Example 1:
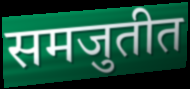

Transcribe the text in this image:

समजुतीत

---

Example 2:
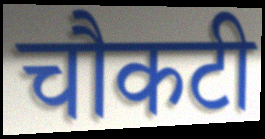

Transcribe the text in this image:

चौकटी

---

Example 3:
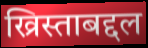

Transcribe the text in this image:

ख्रिस्ताबद्दल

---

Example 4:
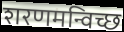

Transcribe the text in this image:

शरणमन्विच्छ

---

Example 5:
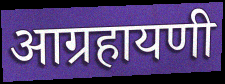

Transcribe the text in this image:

आग्रहायणी